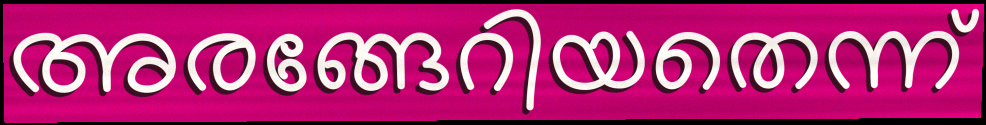
അരങ്ങേറിയതെന്ന്